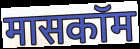
मासकॉम